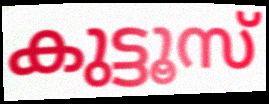
കുട്ടൂസ്